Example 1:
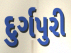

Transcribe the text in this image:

દુર્ગપુરી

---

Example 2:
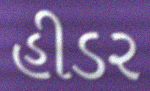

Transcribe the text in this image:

હીડર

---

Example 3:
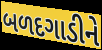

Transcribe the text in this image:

બળદગાડીને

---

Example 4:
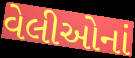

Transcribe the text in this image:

વેલીઓનાં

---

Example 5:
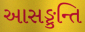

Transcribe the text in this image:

આસઙ્કન્તિ